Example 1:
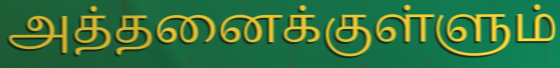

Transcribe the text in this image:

அத்தனைக்குள்ளும்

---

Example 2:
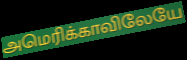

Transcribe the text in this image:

அமெரிக்காவிலேயே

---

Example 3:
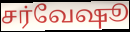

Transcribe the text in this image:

சர்வேஷூ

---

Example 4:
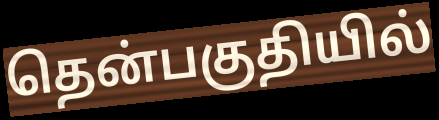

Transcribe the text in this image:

தென்பகுதியில்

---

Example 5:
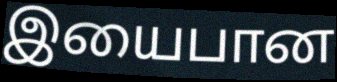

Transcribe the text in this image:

இயைபான